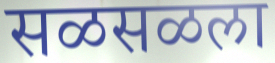
सळसळला